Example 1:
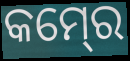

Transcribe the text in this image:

କମ୍‍ରେ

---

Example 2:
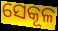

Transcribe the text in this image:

ସେକୂଳ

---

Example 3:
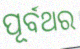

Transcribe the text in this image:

ପୂର୍ବଥର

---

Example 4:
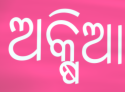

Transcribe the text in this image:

ଅକ୍ଷିଆ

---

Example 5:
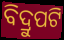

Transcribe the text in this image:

ବିଦ୍ରୁପଟି